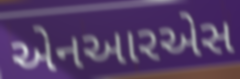
એનઆરએસ